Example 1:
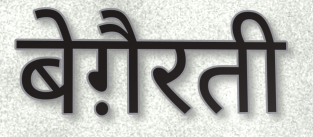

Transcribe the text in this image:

बेग़ैरती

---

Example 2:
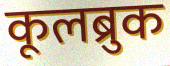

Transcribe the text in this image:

कूलब्रुक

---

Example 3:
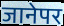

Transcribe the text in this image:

जानेपर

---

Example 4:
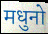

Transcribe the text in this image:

मधुनो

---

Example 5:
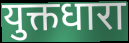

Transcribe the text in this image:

युक्तधारा